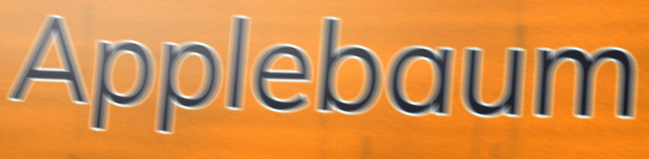
Applebaum